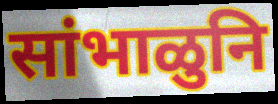
सांभाळुनि